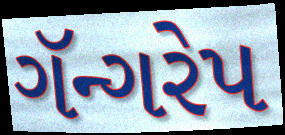
ગૅન્ગરેપ